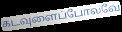
கடவுளைப்போலவே